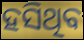
ହସିଥିବ